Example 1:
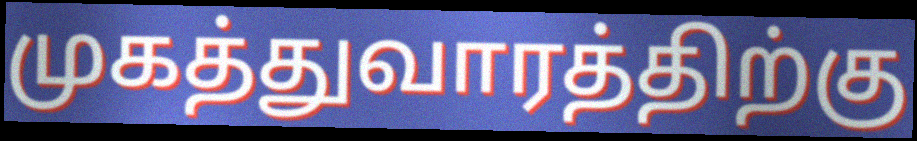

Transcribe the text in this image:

முகத்துவாரத்திற்கு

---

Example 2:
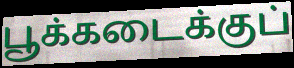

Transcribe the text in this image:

பூக்கடைக்குப்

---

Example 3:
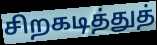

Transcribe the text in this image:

சிறகடித்துத்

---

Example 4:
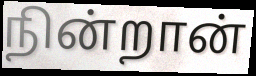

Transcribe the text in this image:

நின்றான்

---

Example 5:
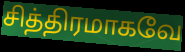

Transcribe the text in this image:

சித்திரமாகவே